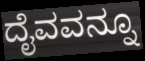
ದೈವವನ್ನೂ